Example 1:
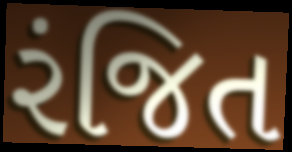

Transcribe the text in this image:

રંજિત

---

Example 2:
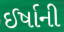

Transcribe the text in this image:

ઈર્ષાની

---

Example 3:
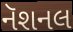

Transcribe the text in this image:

નૅશનલ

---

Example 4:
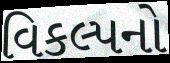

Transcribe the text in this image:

વિકલ્પનો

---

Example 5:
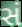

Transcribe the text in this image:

સં